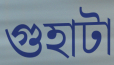
গুহাটা